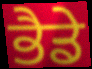
ਭੈਡੇ